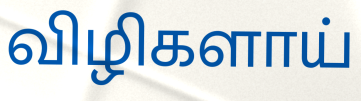
விழிகளாய்